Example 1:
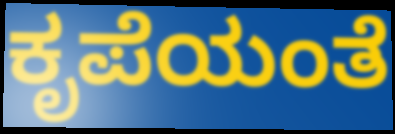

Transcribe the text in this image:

ಕೃಪೆಯಂತೆ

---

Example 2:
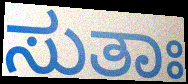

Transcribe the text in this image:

ಸುತಾಃ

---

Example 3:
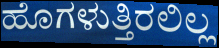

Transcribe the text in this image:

ಹೊಗಳುತ್ತಿರಲಿಲ್ಲ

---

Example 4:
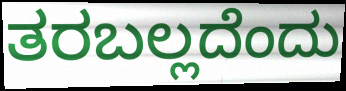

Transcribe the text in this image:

ತರಬಲ್ಲದೆಂದು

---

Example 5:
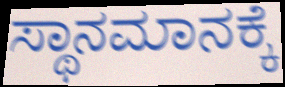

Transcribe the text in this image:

ಸ್ಥಾನಮಾನಕ್ಕೆ